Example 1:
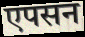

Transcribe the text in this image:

एपसन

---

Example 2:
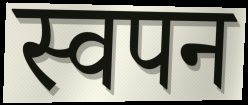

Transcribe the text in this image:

स्वपन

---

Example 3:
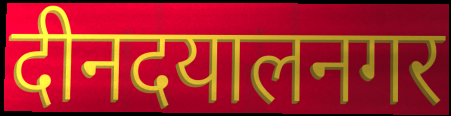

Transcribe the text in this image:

दीनदयालनगर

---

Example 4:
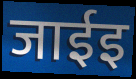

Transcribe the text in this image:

जाईइ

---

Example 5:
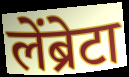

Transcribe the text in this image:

लेंब्रेटा